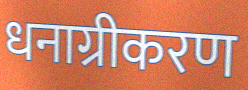
धनाग्रीकरण